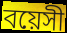
বয়েসী